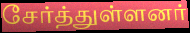
சேர்த்துள்ளனர்